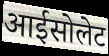
आईसोलेट